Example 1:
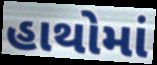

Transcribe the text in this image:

હાથોમાં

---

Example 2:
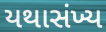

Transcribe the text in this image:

યથાસંખ્ય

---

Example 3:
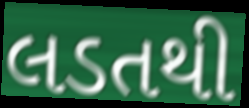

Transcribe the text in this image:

લડતથી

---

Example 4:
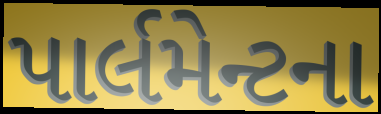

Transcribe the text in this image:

પાર્લમેન્ટના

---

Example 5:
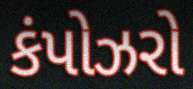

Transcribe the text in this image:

કંપોઝરો